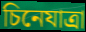
চিনেযাত্ৰা